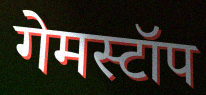
गेमस्टॉप